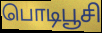
பொடிபூசி